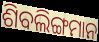
ଶିବଲିଙ୍ଗମାନ